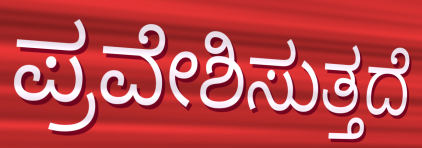
ಪ್ರವೇಶಿಸುತ್ತದೆ